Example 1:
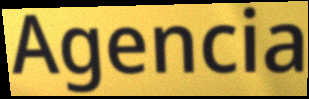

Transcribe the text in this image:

Agencia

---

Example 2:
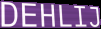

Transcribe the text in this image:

DEHLIJ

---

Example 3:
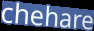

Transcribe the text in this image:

chehare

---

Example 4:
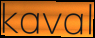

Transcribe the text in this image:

kaval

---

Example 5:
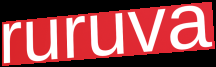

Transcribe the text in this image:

ruruva